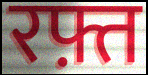
रफ़्त